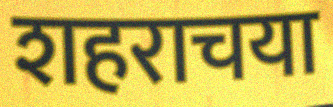
शहराचया